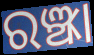
ରଞ୍ଝା